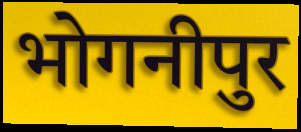
भोगनीपुर